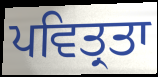
ਪਵਿਤ੍ਰਤਾ